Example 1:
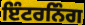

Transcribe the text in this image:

ਇੰਟਰਨਿੰਗ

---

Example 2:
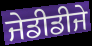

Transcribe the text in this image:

ਜੇਡੀਡੀਜੇ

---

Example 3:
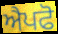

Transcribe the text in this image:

ਐਪਫੋ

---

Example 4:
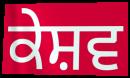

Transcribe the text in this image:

ਕੇਸ਼ਵ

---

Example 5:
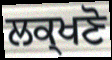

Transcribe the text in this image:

ਲਕ੍ਖਣੋ